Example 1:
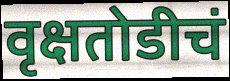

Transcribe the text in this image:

वृक्षतोडीचं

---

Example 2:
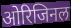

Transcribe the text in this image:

ओरिजिनल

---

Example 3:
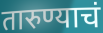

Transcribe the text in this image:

तारुण्याचं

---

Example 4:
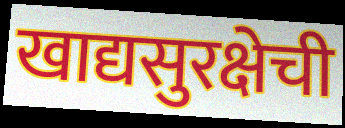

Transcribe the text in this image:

खाद्यसुरक्षेची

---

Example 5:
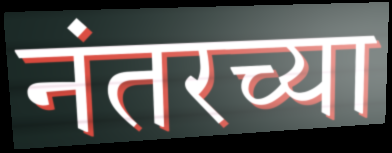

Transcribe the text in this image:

नंतरच्या